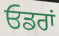
ਓਡਰਾਂ